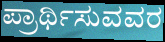
ಪ್ರಾರ್ಥಿಸುವವರ